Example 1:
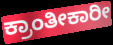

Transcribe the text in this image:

ಕ್ರಾಂತೀಕಾರೀ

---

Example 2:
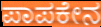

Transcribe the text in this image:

ಪಾಪಕೇನ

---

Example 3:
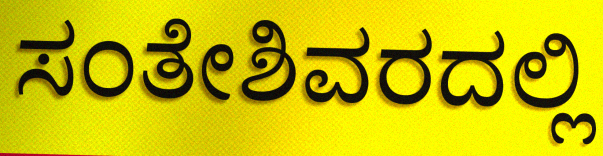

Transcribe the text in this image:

ಸಂತೇಶಿವರದಲ್ಲಿ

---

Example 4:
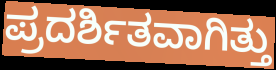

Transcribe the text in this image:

ಪ್ರದರ್ಶಿತವಾಗಿತ್ತು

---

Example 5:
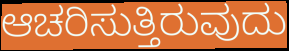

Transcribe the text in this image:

ಆಚರಿಸುತ್ತಿರುವುದು